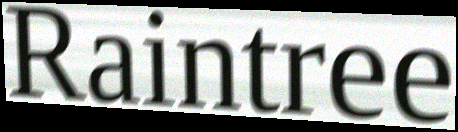
Raintree